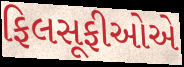
ફિલસૂફીઓએ